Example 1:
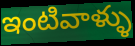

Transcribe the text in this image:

ఇంటివాళ్ళు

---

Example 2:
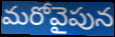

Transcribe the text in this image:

మరోవైపున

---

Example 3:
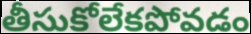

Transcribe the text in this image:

తీసుకోలేకపోవడం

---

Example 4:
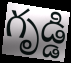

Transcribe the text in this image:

గృడ్డి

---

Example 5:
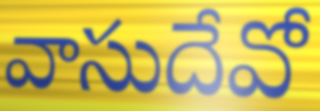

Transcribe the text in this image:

వాసుదేవో